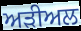
ਅੜੀਅਲ